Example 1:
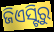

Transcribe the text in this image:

ଜିଏସ୍ଟିରୁ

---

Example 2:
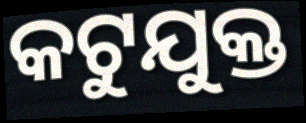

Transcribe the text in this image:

କଟୁଯୁକ୍ତ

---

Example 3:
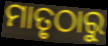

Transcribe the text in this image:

ମାତୃଠାରୁ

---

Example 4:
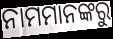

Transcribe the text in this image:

ନାମମାନଙ୍କରୁ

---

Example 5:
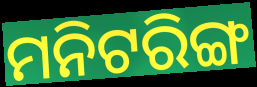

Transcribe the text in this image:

ମନିଟରିଙ୍ଗ